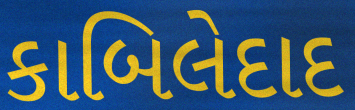
કાબિલેદાદ